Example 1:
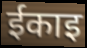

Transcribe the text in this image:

ईकाइ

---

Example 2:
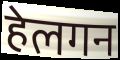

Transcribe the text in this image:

हेलगन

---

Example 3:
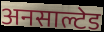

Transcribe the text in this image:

अनसाल्टेड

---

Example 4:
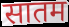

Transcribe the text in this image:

सातम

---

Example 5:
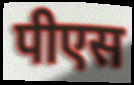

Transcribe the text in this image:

पीएस